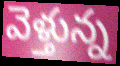
వెళ్తున్న